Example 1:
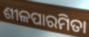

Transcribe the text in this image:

ଶୀଳପାରମିତା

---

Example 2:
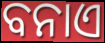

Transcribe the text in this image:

ବନାଏ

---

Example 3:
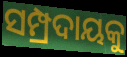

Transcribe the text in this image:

ସମ୍ପ୍ରଦାୟକୁ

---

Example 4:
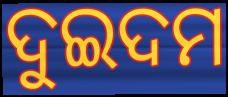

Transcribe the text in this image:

ଦୁଇଦମ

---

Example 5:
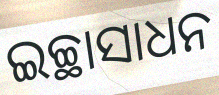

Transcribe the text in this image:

ଇଚ୍ଛାସାଧନ